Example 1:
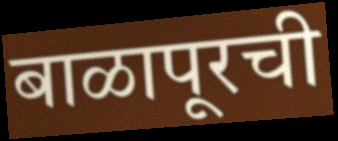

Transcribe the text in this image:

बाळापूरची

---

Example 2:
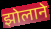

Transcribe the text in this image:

झोलाने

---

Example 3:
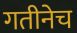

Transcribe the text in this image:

गतीनेच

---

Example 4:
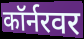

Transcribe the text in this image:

कॉर्नरवर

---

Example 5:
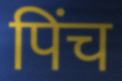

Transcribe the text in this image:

पिंच